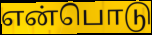
என்பொடு